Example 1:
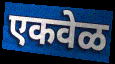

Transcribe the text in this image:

एकवेळ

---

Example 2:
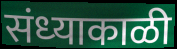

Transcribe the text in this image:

संध्‍याकाळी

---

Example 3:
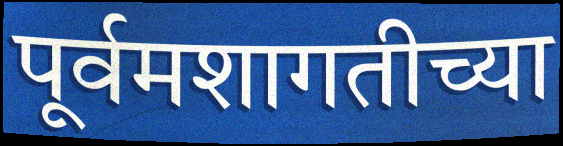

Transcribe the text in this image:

पूर्वमशागतीच्या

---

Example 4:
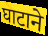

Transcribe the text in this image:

घाटाने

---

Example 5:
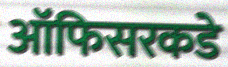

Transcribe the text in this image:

ऑफिसरकडे